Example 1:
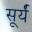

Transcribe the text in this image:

सूर्य॑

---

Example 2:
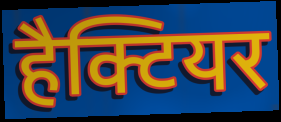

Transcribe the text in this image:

हैक्टियर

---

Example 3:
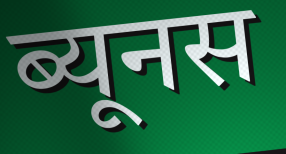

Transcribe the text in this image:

ब्यूनस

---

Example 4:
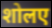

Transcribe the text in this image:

शोलए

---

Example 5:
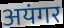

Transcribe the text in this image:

अयंगर